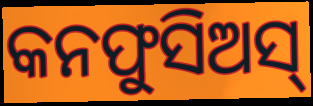
କନଫୁସିଅସ୍